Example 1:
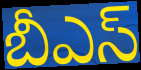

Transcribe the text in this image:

బీఎస్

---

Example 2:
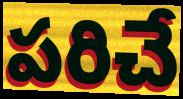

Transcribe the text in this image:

పరిచే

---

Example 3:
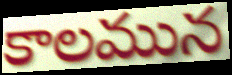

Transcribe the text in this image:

కాలమున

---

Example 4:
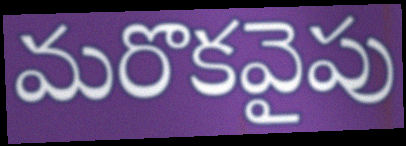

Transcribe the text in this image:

మరొకవైపు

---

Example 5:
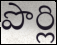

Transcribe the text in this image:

పొర్లి